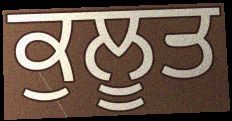
ਕੁਲੂਤ